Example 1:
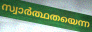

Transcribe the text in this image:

സ്വാർത്ഥതയെന്ന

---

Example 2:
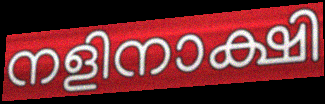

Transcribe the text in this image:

നളിനാക്ഷി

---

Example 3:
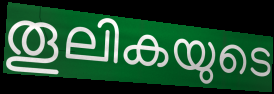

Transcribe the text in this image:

തൂലികയുടെ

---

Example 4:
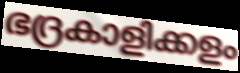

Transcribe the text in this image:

ഭദ്രകാളിക്കളം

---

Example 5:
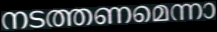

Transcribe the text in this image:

നടത്തണമെന്നാ